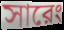
সারেং